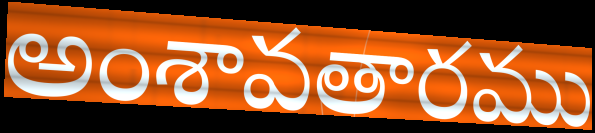
అంశావతారము